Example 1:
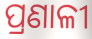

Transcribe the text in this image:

ପ୍ରଣାଳୀ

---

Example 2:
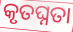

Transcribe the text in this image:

କୃତଘ୍ନତା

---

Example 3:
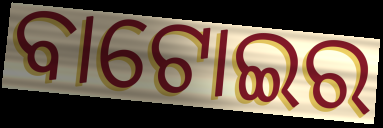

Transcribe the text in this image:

ବାଟୋଇର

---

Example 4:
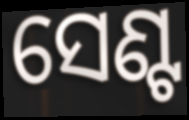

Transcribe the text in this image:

ସେଣ୍ଟ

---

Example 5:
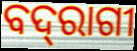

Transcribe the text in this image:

ବଦ୍‌ରାଗୀ